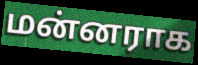
மன்னராக